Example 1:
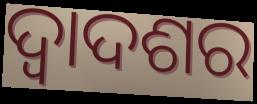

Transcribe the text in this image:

ଦ୍ୱାଦଶର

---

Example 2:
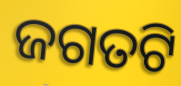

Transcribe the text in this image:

ଜଗତଟି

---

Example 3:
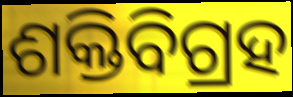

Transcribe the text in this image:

ଶକ୍ତିବିଗ୍ରହ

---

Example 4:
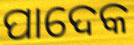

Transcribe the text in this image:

ପାଦେକ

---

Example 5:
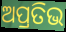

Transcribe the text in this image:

ଅପ୍ରତିଭ